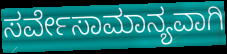
ಸರ್ವೇಸಾಮಾನ್ಯವಾಗಿ